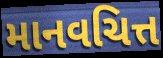
માનવચિત્ત